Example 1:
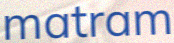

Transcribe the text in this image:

matram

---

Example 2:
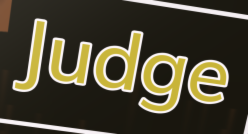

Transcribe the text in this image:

Judge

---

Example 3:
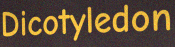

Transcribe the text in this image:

Dicotyledon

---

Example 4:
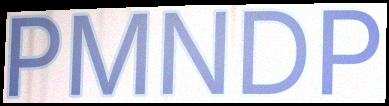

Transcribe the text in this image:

PMNDP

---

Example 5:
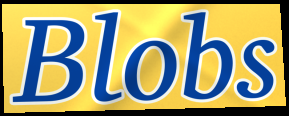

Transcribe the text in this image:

Blobs